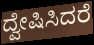
ದ್ವೇಷಿಸಿದರೆ